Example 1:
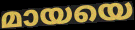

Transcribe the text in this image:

മായയെ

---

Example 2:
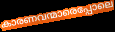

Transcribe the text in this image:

കാരണവന്മാരെപ്പോലെ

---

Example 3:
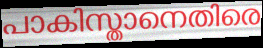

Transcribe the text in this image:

പാകിസ്താനെതിരെ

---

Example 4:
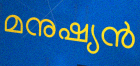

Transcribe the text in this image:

മനുഷ്യൻ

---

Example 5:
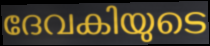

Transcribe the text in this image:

ദേവകിയുടെ